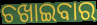
ଚଖାଇବାର